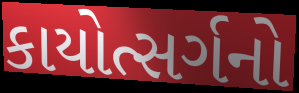
કાયોત્સર્ગનો